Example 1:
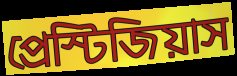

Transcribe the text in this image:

প্রেস্টিজিয়াস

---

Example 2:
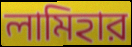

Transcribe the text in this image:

লামিহার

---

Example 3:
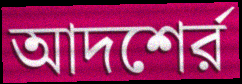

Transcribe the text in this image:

আদশের্র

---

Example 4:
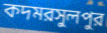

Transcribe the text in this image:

কদমরসুলপুর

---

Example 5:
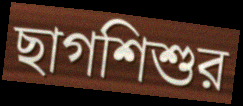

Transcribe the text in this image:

ছাগশিশুর